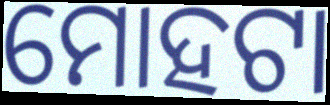
ମୋହଟା